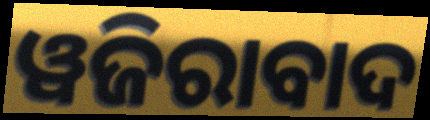
ୱଜିରାବାଦ